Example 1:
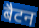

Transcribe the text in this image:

बैटन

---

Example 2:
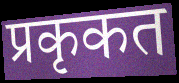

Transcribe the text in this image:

प्रकृकत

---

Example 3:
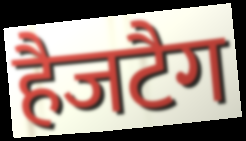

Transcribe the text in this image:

हैजटैग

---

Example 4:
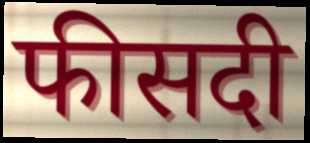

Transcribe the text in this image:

फीसदी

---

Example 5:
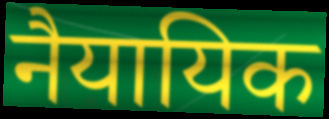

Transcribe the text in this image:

नैयायिक